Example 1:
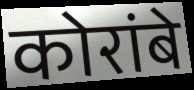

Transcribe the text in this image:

कोरांबे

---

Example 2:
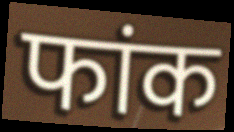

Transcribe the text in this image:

फांक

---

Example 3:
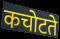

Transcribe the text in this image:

कचोटते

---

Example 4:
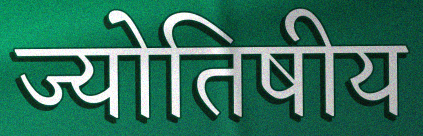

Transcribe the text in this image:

ज्योतिषीय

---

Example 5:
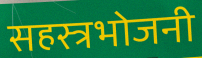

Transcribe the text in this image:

सहस्त्रभोजनी